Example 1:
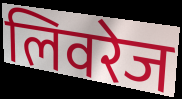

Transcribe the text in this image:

लिवरेज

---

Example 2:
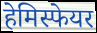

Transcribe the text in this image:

हेमिस्फेयर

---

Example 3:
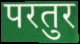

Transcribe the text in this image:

परतुर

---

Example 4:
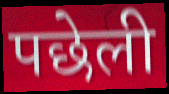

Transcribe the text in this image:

पछेली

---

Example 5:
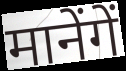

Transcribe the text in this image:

मानेंगें